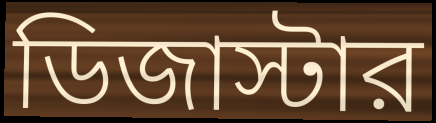
ডিজাস্টার